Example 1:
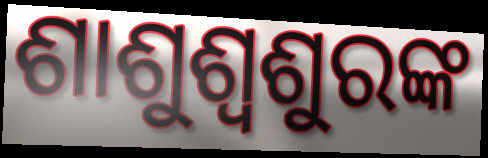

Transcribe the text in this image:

ଶାଶୁଶ୍ୱଶୁରଙ୍କ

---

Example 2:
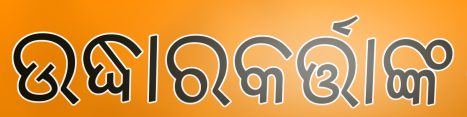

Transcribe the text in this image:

ଉଦ୍ଧାରକର୍ତ୍ତାଙ୍କ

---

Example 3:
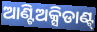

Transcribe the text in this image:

ଆଣ୍ଟିଅକ୍ସିଡାଣ୍ଟ୍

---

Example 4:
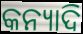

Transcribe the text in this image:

କନ୍ୟାଦି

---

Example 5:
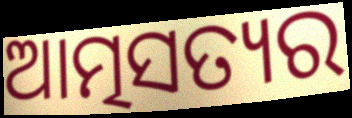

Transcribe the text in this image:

ଆତ୍ମସତ୍ୟର